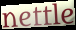
nettle